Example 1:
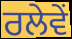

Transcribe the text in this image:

ਰਲੇਵੇਂ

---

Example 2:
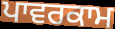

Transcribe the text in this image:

ਪਾਵਰਕਾਮ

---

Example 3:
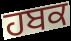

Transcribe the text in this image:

ਹਬਕ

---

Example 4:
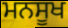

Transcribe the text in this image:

ਮਨਸੂਖ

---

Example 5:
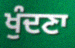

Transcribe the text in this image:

ਖੁੰਦਣਾ